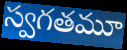
స్వగతమూ